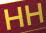
HH